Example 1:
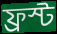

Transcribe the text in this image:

ফ্রস্ট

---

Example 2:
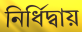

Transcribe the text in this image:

নির্ধিদ্বায়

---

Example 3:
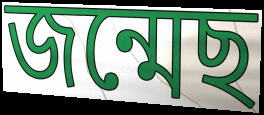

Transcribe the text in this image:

জন্মেছ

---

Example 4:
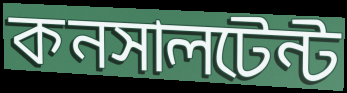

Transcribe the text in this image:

কনসালটেন্ট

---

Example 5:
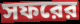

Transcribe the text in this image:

সফরের